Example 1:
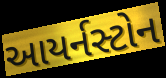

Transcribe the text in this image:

આયર્નસ્ટોન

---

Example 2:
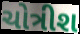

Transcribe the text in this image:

ચોત્રીશ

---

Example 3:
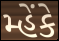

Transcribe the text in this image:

મ્હેંકે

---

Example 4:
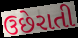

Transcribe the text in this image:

ઉછેરાતી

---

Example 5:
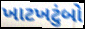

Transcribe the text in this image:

ખાટખટુંબો